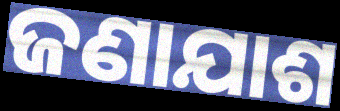
ଜଣାଯାଶ